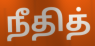
நீதித்